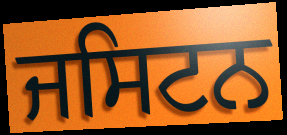
ਜਸਿਟਨ